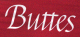
Buttes